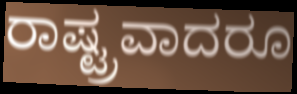
ರಾಷ್ಟ್ರವಾದರೂ